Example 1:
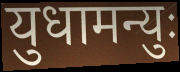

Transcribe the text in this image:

युधामन्युः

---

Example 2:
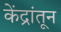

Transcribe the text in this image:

केंद्रांतून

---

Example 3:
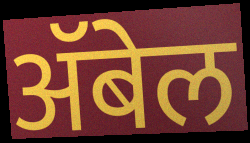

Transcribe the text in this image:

ॲबेल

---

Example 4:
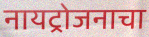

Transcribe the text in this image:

नायट्रोजनाचा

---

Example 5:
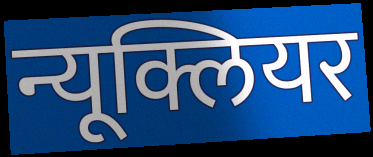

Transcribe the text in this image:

न्यूक्लियर